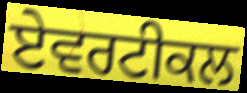
ਏਵਰਟੀਕਲ